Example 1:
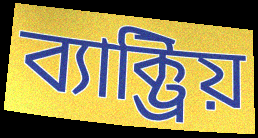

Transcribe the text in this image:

ব্যাক্ট্রিয়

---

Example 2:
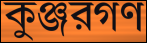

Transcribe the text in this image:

কুঞ্জরগণ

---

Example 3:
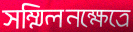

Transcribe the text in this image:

সম্মিলনক্ষেত্রে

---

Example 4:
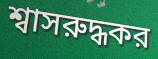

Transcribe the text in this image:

শ্বাসরুদ্ধকর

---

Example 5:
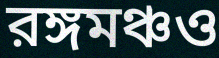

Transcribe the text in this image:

রঙ্গমঞ্চও